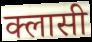
क्लासी